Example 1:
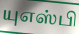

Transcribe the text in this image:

யுஎஸ்பி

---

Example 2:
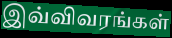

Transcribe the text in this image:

இவ்விவரங்கள்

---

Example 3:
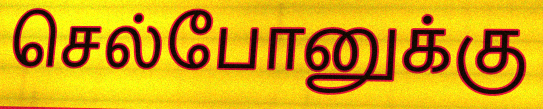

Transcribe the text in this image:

செல்போனுக்கு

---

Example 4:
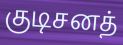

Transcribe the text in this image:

குடிசனத்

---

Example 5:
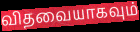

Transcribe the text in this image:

விதவையாகவும்